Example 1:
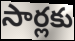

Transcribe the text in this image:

సార్లకు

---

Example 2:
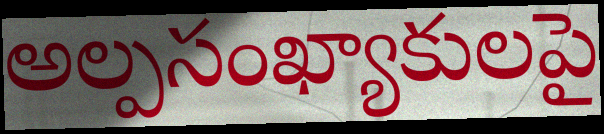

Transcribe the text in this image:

అల్పసంఖ్యాకులపై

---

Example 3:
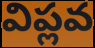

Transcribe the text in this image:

విప్లవ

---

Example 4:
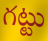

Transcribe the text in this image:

గట్టు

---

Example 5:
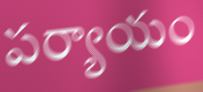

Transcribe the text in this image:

పర్యాయం